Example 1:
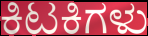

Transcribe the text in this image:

ಕಿಟಕಿಗಳು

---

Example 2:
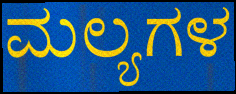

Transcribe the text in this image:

ಮಲ್ಯಗಳ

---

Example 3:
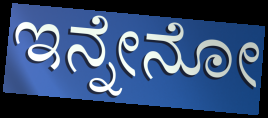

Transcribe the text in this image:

ಇನ್ನೇನೋ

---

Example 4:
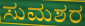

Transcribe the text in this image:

ಸುಮಶರ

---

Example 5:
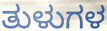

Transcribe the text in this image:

ತುಳುಗಳ